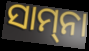
ସାମ୍‌ନା